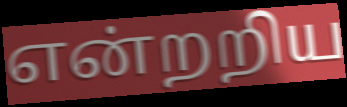
என்றறிய